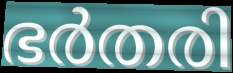
ഭർതരി